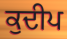
ਕੁਦੀਪ